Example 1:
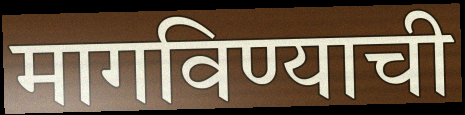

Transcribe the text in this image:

मागविण्याची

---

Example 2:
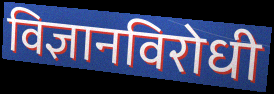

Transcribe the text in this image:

विज्ञानविरोधी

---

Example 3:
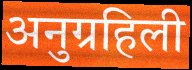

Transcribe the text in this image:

अनुग्रहिली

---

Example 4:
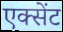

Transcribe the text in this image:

एक्सेंट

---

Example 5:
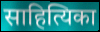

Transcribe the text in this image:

साहित्यिका